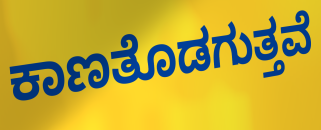
ಕಾಣತೊಡಗುತ್ತವೆ